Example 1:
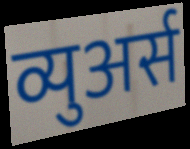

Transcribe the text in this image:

व्युअर्स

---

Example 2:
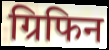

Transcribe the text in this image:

ग्रिफिन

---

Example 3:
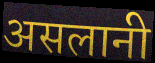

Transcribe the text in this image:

असलानी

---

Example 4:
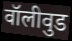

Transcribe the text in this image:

वॉलीवुड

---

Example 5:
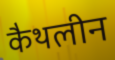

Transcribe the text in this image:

कैथलीन